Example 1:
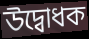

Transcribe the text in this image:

উদ্বোধক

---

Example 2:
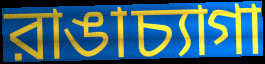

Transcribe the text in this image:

রাঙাচ্যাগা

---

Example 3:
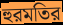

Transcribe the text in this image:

হুরমতির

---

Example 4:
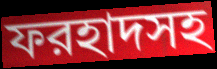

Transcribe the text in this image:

ফরহাদসহ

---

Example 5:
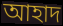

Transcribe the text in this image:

আহাদ